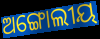
ଅଙ୍ଗୋଲୀୟ